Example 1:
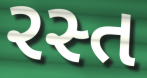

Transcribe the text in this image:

રસ્ત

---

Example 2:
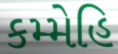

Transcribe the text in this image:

કમ્મેહિ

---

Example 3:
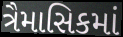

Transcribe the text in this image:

ત્રૈમાસિકમાં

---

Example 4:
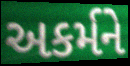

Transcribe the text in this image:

અકર્મને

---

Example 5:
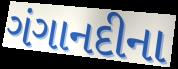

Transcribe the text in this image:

ગંગાનદીના